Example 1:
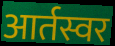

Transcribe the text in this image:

आर्तस्वर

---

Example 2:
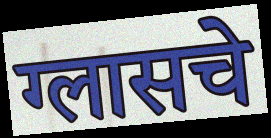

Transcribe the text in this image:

ग्लासचे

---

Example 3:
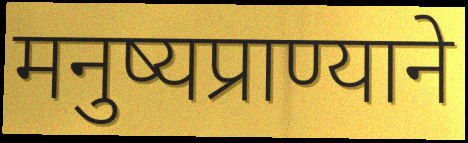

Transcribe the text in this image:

मनुष्यप्राण्याने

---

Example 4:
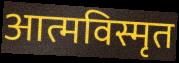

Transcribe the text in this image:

आत्मविस्मृत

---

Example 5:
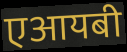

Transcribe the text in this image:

एआयबी